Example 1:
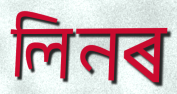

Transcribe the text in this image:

লিনৰ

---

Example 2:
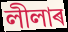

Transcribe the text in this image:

লীলাৰ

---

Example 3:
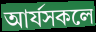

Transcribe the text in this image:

আৰ্যসকলে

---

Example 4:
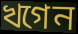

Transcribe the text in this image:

খগেন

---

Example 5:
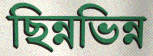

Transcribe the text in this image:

ছিন্নভিন্ন